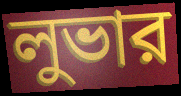
লুভার